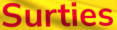
Surties